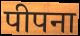
पीपना